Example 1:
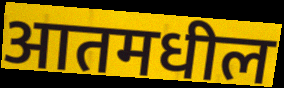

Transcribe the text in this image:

आतमधील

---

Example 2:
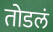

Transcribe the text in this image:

तोडलं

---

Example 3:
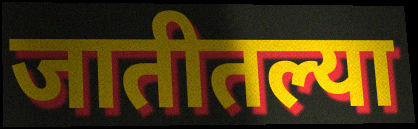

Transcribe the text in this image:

जातीतल्या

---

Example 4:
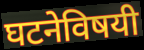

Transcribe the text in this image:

घटनेविषयी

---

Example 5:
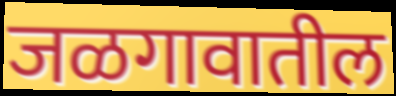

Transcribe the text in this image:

जळगावातील